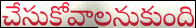
చేసుకోవాలనుకుంది